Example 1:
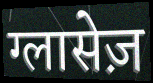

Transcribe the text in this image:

ग्लासेज़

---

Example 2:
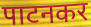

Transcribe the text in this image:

पाटनकर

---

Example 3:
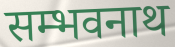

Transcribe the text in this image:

सम्भवनाथ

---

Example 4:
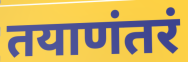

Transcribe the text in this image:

तयाणंतरं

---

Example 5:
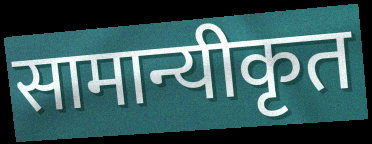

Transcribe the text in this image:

सामान्यीकृत